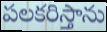
పలకరిస్తాను